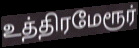
உத்திரமேரூர்